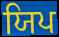
ਯਿਪ